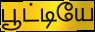
பூட்டியே